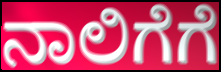
ನಾಲಿಗೆಗೆ